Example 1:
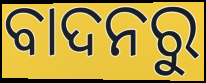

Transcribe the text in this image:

ବାଦନରୁ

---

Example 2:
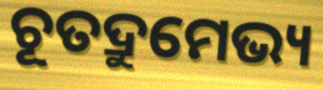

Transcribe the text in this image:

ଚୂତଦ୍ରୁମେଭ୍ୟ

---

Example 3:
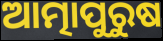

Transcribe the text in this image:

ଆତ୍ମାପୁରୁଷ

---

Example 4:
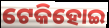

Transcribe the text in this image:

ଟେକିହୋଇ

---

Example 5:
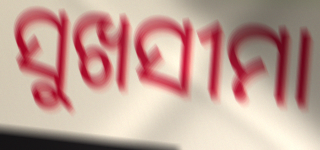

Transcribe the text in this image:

ସୁଖସୀମା